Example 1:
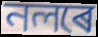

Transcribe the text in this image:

নলৰে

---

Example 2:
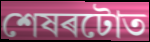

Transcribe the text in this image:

শেষৰটোত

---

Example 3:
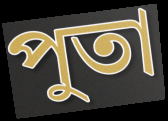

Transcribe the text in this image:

পুতা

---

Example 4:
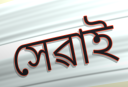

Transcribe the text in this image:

সেৱাই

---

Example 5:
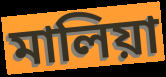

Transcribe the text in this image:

মালিয়া